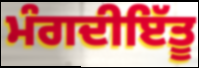
ਮੰਗਦੀਇੱਤੂ